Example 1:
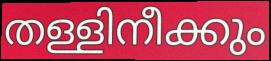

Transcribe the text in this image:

തള്ളിനീക്കും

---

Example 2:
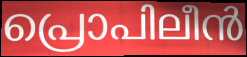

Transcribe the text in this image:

പ്രൊപിലീൻ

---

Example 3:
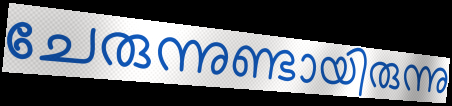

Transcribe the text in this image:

ചേരുന്നുണ്ടായിരുന്നു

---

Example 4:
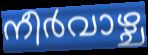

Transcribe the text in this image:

നീർവാഴ്ച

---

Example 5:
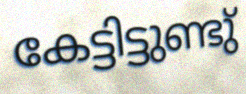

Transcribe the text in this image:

കേട്ടിട്ടുണ്ടു്